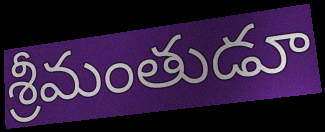
శ్రీమంతుడూ